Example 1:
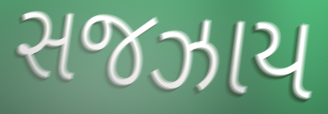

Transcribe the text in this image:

સજઝાય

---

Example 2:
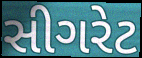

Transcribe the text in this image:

સીગરેટ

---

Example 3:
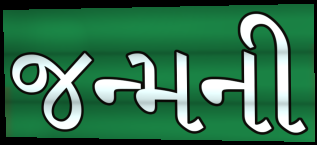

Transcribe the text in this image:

જન્મની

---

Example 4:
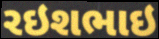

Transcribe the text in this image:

રઇશભાઇ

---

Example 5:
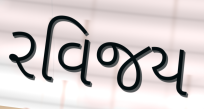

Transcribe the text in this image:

રવિજય